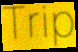
Trip